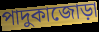
পাদুকাজোড়া